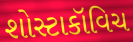
શોસ્ટાકૉવિચ